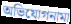
অভিযোগনামা